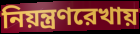
নিয়ন্ত্রণরেখায়